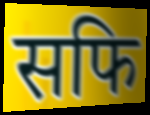
सफि